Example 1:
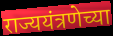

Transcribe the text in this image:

राज्ययंत्रणेच्या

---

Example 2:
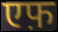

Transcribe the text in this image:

एफ़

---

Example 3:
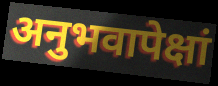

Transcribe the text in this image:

अनुभवापेक्षां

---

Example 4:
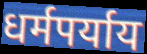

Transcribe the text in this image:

धर्मपर्याय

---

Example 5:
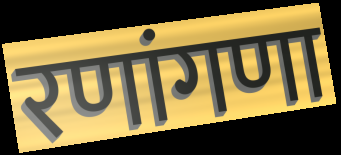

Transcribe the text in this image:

रणांगणा